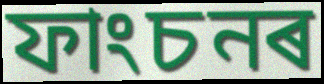
ফাংচনৰ